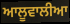
ਆਲੂਵਾਲੀਆ